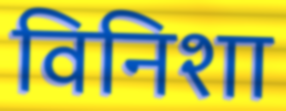
विनिशा